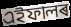
এইফালৰ